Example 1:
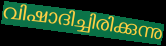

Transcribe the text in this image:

വിഷാദിച്ചിരിക്കുന്നു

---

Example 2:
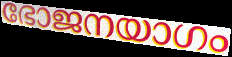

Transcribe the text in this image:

ഭോജനയാഗം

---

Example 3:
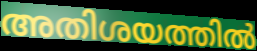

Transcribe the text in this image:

അതിശയത്തിൽ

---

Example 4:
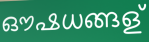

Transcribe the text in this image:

ഔഷധങ്ങള്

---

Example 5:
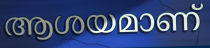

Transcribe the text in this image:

ആശയമാണ്